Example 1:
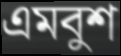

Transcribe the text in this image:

এমবুশ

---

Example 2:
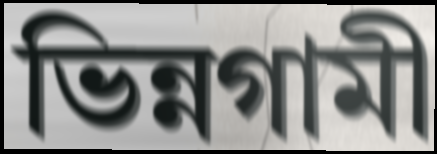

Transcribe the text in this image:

ভিন্নগামী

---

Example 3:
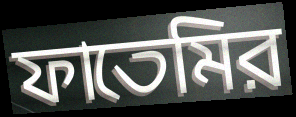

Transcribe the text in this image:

ফাতেমির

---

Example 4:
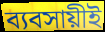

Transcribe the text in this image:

ব্যবসায়ীই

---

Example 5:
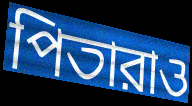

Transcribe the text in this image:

পিতারাও